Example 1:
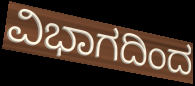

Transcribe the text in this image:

ವಿಭಾಗದಿಂದ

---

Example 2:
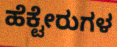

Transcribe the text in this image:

ಹೆಕ್ಟೇರುಗಳ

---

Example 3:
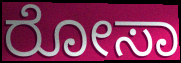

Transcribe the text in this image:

ರೋಸಾ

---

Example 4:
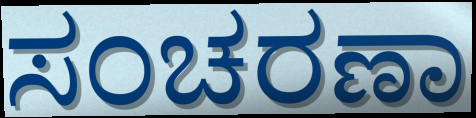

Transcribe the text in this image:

ಸಂಚರಣಾ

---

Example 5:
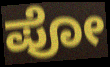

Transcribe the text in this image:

ಪೋ